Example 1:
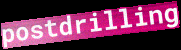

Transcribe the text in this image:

postdrilling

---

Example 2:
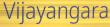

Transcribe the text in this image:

Vijayangara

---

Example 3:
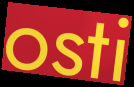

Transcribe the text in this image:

osti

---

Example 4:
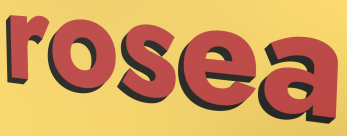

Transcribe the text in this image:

rosea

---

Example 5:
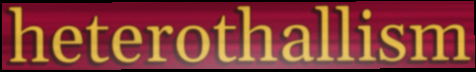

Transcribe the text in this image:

heterothallism